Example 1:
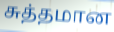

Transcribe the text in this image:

சுத்தமான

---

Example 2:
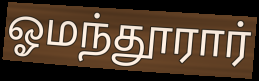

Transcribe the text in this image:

ஓமந்தூரார்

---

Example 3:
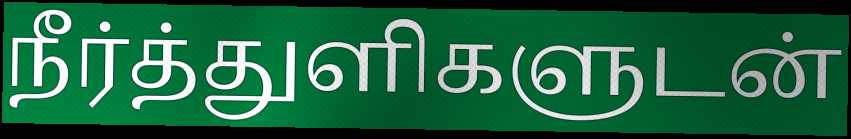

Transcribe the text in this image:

நீர்த்துளிகளுடன்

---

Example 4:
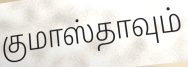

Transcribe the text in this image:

குமாஸ்தாவும்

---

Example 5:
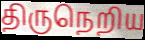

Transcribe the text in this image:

திருநெறிய